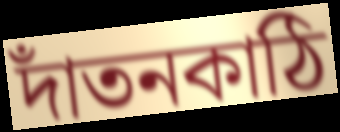
দাঁতনকাঠি